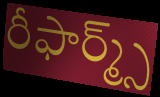
రీఫార్మ్స్